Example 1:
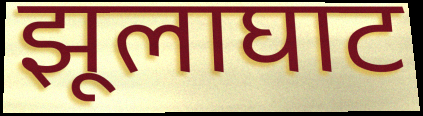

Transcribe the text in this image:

झूलाघाट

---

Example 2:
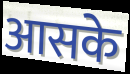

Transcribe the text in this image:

आसके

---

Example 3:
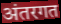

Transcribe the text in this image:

अंतरगत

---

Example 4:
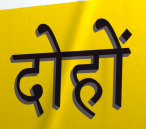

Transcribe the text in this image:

दोहों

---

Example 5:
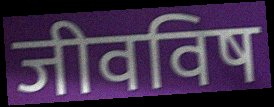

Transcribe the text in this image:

जीवविष